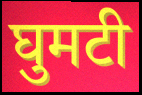
घुमटी